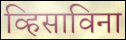
व्हिसाविना